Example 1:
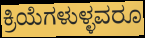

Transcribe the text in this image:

ಕ್ರಿಯೆಗಳುಳ್ಳವರೂ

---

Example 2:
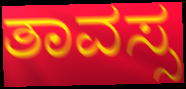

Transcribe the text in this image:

ತಾವಸ್ಸ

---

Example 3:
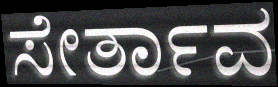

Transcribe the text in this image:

ಸೇರ್ತಾವ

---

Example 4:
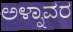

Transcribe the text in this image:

ಅಳ್ನಾವರ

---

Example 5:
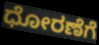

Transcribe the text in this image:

ಧೋರಣೆಗೆ